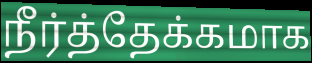
நீர்த்தேக்கமாக